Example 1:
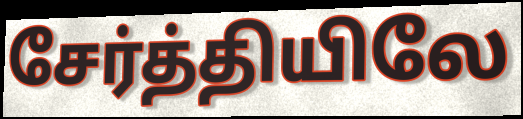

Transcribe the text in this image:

சேர்த்தியிலே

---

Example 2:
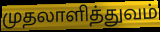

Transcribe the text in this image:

முதலாளித்துவம்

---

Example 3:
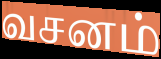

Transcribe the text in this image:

வசனம்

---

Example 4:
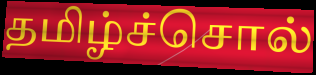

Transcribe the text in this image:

தமிழ்ச்சொல்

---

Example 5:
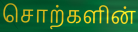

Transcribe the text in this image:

சொற்களின்